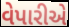
વેપારીએ